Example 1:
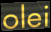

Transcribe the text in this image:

olei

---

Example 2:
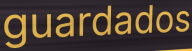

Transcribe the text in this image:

guardados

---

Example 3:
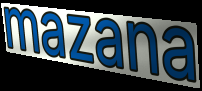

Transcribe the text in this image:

mazana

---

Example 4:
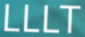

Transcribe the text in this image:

LLLT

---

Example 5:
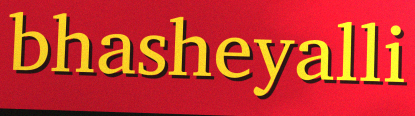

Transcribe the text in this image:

bhasheyalli